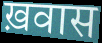
ख़वास